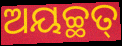
ଅୟଚ୍ଛତ୍